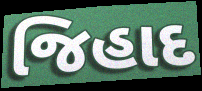
જિહાદ